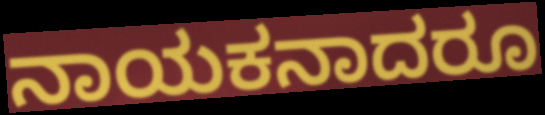
ನಾಯಕನಾದರೂ